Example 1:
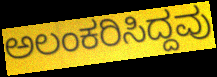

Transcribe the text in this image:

ಅಲಂಕರಿಸಿದ್ದವು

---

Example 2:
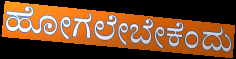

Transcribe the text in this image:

ಹೋಗಲೇಬೇಕೆಂದು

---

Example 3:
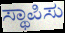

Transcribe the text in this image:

ಸ್ಥಾಪಿಸು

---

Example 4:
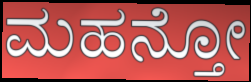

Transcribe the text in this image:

ಮಹನ್ತೋ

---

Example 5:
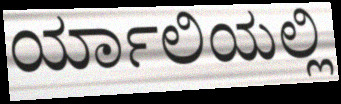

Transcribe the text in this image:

ರ್ಯಾಲಿಯಲ್ಲಿ